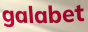
galabet